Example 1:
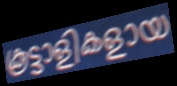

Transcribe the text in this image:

കൂട്ടാളികളായ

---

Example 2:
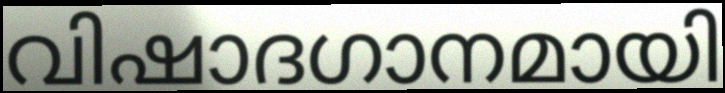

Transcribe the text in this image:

വിഷാദഗാനമായി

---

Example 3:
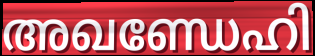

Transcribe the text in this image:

അഖണ്ഡേഹി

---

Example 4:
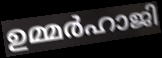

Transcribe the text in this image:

ഉമ്മർഹാജി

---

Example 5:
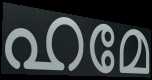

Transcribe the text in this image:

ഹമേ